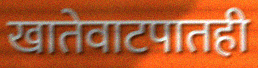
खातेवाटपातही